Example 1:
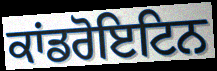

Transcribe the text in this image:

ਕਾਂਡਰੋਇਟਿਨ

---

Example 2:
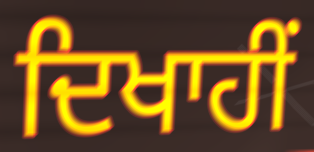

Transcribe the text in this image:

ਦਿਖਾਹੀਂ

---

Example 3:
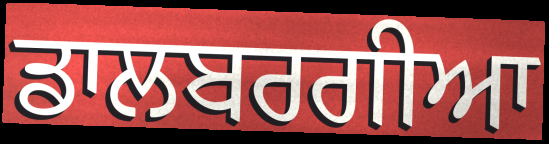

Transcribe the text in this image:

ਡਾਲਬਰਗੀਆ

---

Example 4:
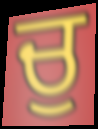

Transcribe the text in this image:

ਚੁ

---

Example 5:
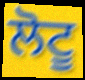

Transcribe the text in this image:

ਲੋਟੂ